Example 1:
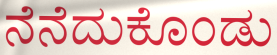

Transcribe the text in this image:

ನೆನೆದುಕೊಂಡು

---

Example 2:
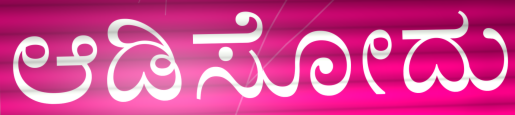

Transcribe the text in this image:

ಆಡಿಸೋದು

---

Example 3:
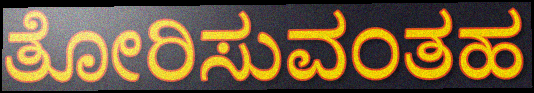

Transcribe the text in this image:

ತೋರಿಸುವಂತಹ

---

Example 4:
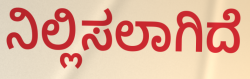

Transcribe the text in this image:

ನಿಲ್ಲಿಸಲಾಗಿದೆ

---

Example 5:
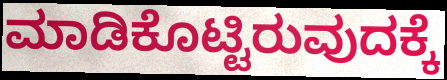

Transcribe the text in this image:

ಮಾಡಿಕೊಟ್ಟಿರುವುದಕ್ಕೆ